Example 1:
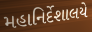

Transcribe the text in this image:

મહાનિર્દેશાલયે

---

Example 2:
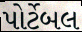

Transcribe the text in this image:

પોર્ટેબલ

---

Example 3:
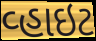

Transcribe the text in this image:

વ્હાઇટ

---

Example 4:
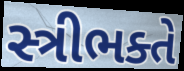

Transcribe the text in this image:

સ્ત્રીભક્તે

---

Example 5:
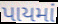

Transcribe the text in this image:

પાયમાં